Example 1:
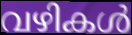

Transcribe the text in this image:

വഴികൾ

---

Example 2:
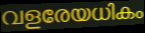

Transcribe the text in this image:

വളരേയധികം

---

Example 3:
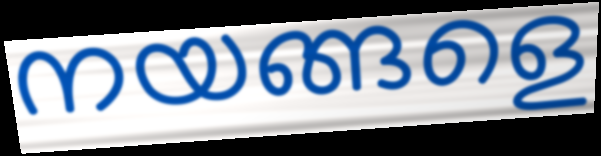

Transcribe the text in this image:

നയങ്ങളെ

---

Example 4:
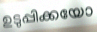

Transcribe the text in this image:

ഉടുപ്പിക്കയോ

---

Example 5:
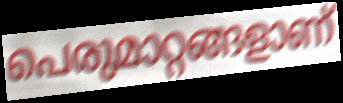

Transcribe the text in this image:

പെരുമാറ്റങ്ങളാണ്